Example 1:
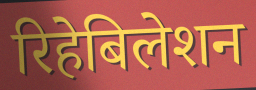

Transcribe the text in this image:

रिहेबिलेशन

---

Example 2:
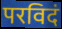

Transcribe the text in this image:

परविदं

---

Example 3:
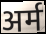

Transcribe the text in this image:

अर्म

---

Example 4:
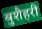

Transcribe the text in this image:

बुशैहरी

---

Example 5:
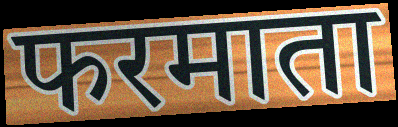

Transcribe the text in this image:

फरमाता